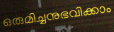
ഒരുമിച്ചനുഭവിക്കാം